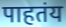
पाहतंय